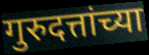
गुरुदत्तांच्या